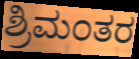
ಶ್ರಿಮಂತರ